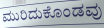
ಮುರಿದುಕೊಂಡವು